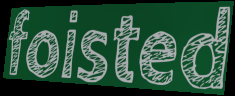
foisted